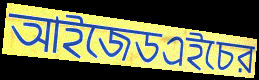
আইজেডএইচের